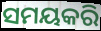
ସମୟକରି